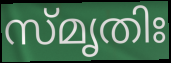
സ്മൃതിഃ